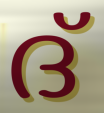
ദ്